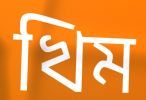
খিম